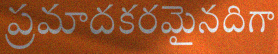
ప్రమాదకరమైనదిగా